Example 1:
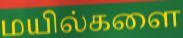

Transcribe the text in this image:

மயில்களை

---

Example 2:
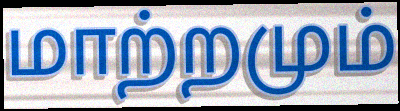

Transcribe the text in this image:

மாற்றமும்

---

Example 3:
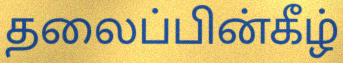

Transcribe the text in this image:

தலைப்பின்கீழ்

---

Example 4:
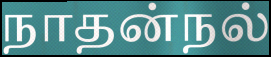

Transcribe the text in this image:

நாதன்நல்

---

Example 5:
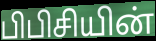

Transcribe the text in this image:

பிபிசியின்